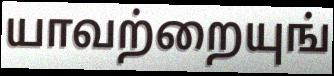
யாவற்றையுங்